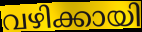
വഴിക്കായി